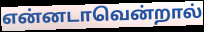
என்னடாவென்றால்